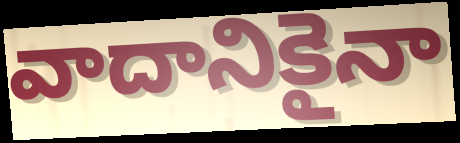
వాదానికైనా